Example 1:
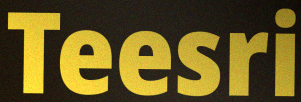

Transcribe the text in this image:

Teesri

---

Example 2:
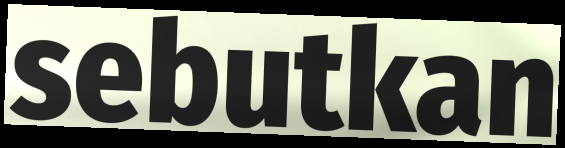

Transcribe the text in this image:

sebutkan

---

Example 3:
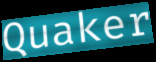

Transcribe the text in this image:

Quaker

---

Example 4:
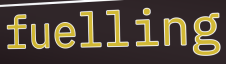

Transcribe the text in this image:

fuelling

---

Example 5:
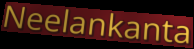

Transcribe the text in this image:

Neelankanta